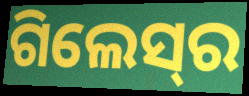
ଗିଲେସ୍‍ର